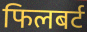
फिलबर्ट